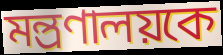
মন্ত্রণালয়কে